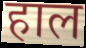
हाल